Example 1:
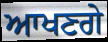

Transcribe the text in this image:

ਆਖਣਗੇ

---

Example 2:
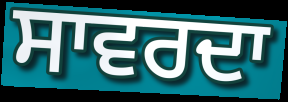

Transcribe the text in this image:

ਸਾਵਰਦਾ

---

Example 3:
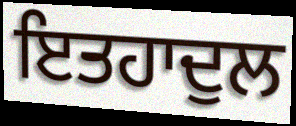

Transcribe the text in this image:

ਇਤਹਾਦੁਲ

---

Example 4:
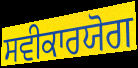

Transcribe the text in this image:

ਸਵੀਕਾਰਯੋਗ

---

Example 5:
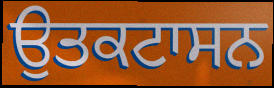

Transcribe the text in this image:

ਉਤਕਟਾਸਨ